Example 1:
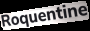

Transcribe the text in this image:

Roquentine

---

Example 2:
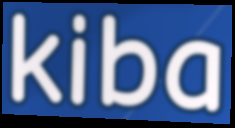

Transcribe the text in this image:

kiba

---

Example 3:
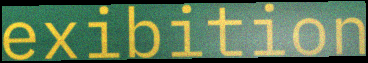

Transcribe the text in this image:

exibition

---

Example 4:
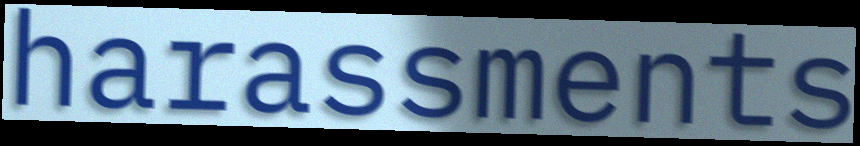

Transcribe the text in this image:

harassments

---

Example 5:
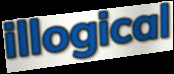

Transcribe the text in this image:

illogical